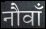
नौवाँ